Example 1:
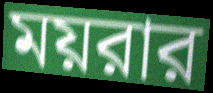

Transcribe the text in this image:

ময়রার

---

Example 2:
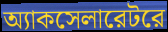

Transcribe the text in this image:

অ্যাকসেলারেটরে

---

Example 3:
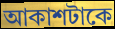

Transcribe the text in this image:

আকাশটাকে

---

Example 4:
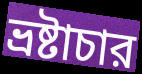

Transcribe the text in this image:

ভ্রষ্টাচার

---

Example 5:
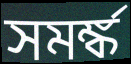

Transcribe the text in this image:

সমর্ঙ্ক